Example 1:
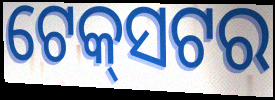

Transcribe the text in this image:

ଟେକ୍‌ସଟର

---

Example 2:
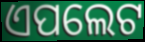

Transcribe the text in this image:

ଏପଲେଟ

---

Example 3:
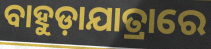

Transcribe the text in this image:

ବାହୁଡ଼ାଯାତ୍ରାରେ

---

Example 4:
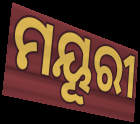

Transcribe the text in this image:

ମୟୂରୀ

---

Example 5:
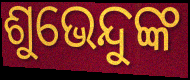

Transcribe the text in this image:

ଶୁଭେନ୍ଦୁଙ୍କ